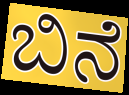
ಬಿನೆ